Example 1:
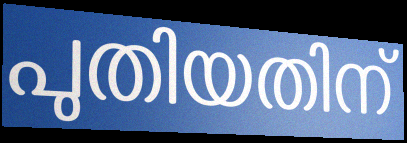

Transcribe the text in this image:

പുതിയതിന്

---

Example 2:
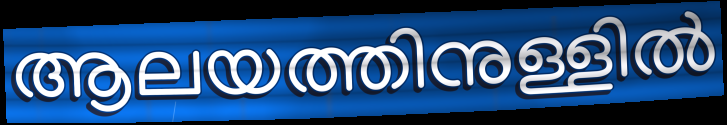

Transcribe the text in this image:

ആലയത്തിനുള്ളിൽ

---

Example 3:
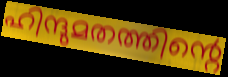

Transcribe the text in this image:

ഹിന്ദുമതത്തിന്റെ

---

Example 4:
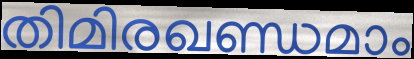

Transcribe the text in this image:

തിമിരഖണ്ഡമാം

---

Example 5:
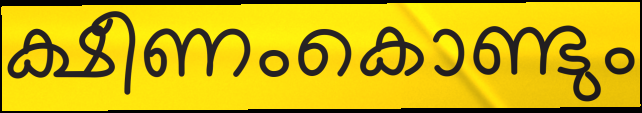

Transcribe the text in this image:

ക്ഷീണംകൊണ്ടും